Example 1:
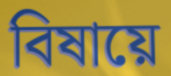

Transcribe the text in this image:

বিষায়ে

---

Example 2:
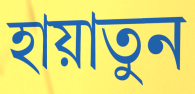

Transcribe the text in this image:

হায়াতুন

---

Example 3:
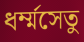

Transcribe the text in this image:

ধর্ম্মসেতু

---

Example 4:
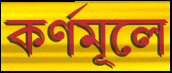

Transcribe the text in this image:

কর্ণমূলে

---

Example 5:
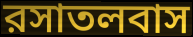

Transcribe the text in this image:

রসাতলবাস